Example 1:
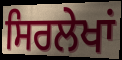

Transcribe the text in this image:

ਸਿਰਲੇਖਾਂ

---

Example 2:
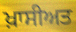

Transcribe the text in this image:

ਖ਼ਾਸੀਅਤ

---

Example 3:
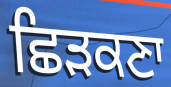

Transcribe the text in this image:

ਛਿੜਕਣਾ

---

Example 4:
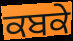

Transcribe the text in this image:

ਕਬਕੇ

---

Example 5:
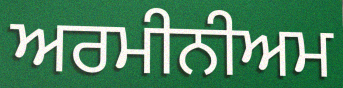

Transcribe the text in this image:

ਅਰਮੀਨੀਅਮ